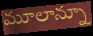
మూలాన్నూ